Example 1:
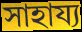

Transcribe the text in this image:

সাহায্য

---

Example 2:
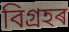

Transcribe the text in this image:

বিগ্ৰহৰ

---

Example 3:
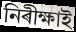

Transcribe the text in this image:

নিৰীক্ষাই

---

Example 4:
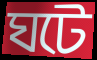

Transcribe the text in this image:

ঘটে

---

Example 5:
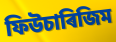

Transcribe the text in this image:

ফিউচাৰিজিম